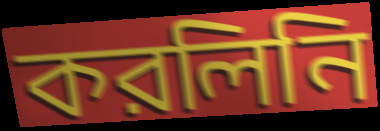
করলিনি